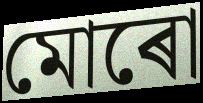
মোৰো